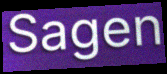
Sagen